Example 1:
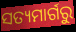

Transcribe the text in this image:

ସତ୍ୟମାର୍ଗରୁ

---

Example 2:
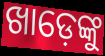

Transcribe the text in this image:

ଖାଡ଼େଙ୍କୁ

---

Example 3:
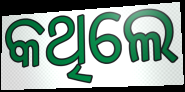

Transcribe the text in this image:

କଥିଲେ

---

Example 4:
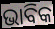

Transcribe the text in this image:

ଭାବିକ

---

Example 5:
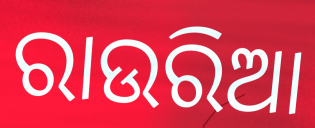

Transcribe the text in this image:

ରାଉରିଆ